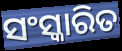
ସଂସ୍କାରିତ